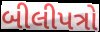
બીલીપત્રો